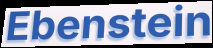
Ebenstein